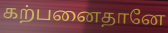
கற்பனைதானே